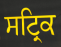
ਸਟ੍ਰਿਕ